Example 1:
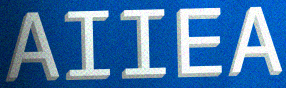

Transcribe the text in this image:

AIIEA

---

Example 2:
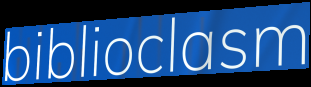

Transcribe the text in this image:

biblioclasm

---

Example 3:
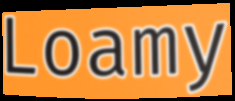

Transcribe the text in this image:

Loamy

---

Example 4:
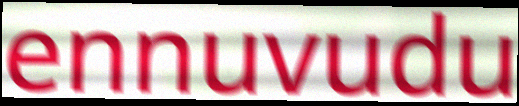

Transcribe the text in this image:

ennuvudu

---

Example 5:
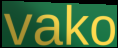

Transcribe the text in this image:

vako